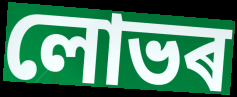
লোভৰ